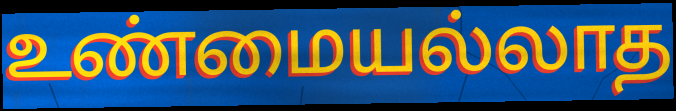
உண்மையல்லாத